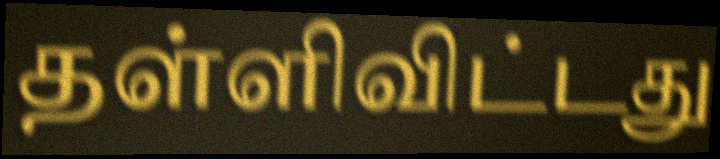
தள்ளிவிட்டது